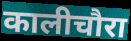
कालीचौरा